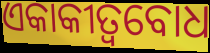
ଏକାକୀତ୍ୱବୋଧ